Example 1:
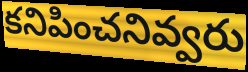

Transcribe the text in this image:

కనిపించనివ్వరు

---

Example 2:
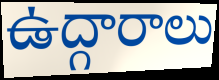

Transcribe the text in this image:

ఉద్గారాలు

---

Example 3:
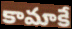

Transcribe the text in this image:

కామాకే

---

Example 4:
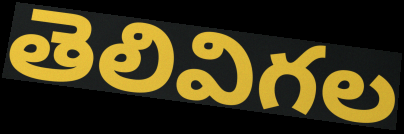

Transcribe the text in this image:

తెలివిగల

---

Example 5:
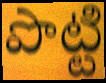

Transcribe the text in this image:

పొట్టి